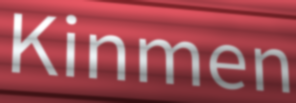
Kinmen